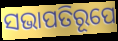
ସଭାପତିରୂପେ